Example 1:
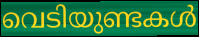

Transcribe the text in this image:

വെടിയുണ്ടകൾ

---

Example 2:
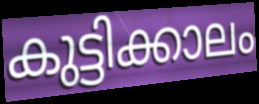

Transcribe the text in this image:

കുട്ടിക്കാലം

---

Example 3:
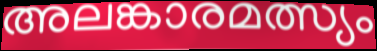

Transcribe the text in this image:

അലങ്കാരമത്സ്യം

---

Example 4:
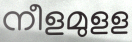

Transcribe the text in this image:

നീളമുളള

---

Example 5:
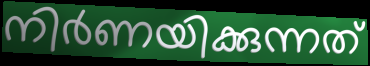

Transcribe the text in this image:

നിർണയിക്കുന്നത്